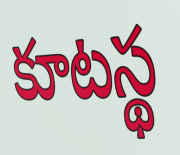
కూటస్థ